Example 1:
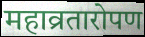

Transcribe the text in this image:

महाव्रतारोपण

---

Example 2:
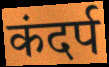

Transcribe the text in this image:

कंदर्प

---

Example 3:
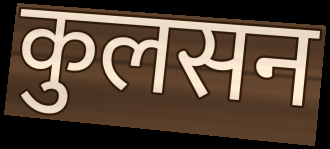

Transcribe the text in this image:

कुलसन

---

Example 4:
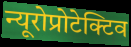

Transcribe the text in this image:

न्यूरोप्रोटेक्टिव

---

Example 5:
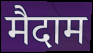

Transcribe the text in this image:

मैदाम